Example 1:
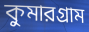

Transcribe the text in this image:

কুমারগ্রাম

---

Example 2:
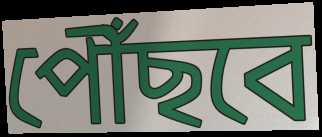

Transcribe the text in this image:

পৌঁছবে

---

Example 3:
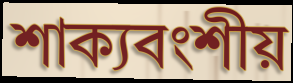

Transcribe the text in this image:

শাক্যবংশীয়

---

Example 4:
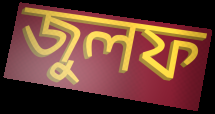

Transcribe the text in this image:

জুলফ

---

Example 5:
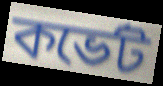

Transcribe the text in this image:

কর্ভেট